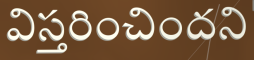
విస్తరించిందని